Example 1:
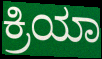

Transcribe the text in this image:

ಕ್ರಿಯಾ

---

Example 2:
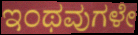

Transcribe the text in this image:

ಇಂಥವುಗಳೇ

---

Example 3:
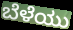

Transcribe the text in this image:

ಬೆಳೆಯು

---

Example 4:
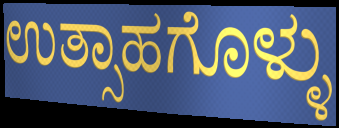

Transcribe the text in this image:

ಉತ್ಸಾಹಗೊಳ್ಳು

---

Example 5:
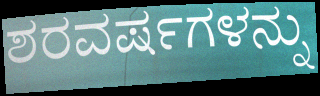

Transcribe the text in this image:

ಶರವರ್ಷಗಳನ್ನು